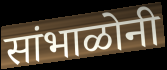
सांभाळोनी